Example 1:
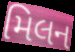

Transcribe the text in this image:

મિલન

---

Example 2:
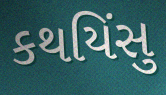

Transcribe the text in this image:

કથયિંસુ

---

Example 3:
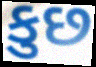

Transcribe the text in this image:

કુછ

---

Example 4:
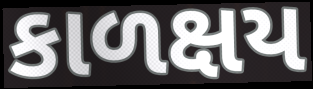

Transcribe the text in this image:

કાળક્ષય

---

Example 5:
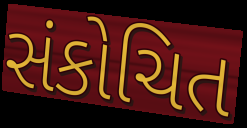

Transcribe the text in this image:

સંકોચિત